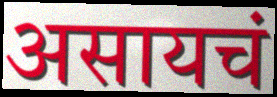
असायचं